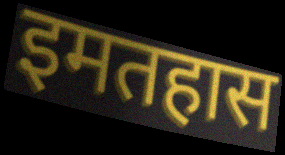
इमतहास